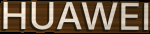
HUAWEI